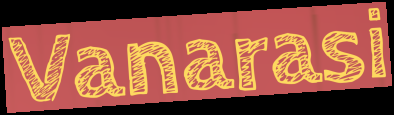
Vanarasi